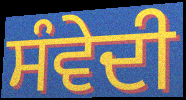
ਸੰਵੇਦੀ